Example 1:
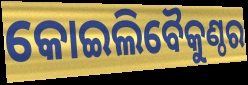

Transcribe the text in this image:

କୋଇଲିବୈକୁଣ୍ଠର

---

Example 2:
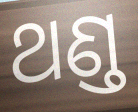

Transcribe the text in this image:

ଥଣ୍ଡ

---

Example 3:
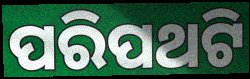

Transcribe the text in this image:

ପରିପଥଟି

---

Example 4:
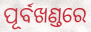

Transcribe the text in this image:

ପୂର୍ବଖଣ୍ଡରେ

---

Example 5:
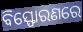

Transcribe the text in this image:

ବିସ୍ଫୋରଣରେ